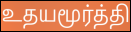
உதயமூர்த்தி